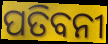
ପତିବନୀ